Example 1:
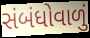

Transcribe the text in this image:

સંબંધોવાળું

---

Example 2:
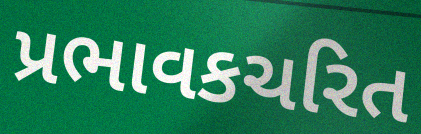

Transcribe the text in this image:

પ્રભાવકચરિત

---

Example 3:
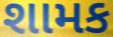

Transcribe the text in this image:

શામક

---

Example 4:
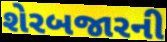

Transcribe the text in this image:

શેરબજારની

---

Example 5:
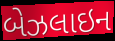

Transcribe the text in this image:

બેઝલાઇન